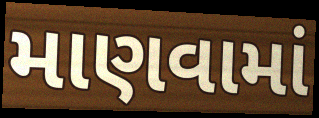
માણવામાં